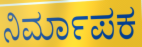
ನಿರ್ಮಾಪಕ